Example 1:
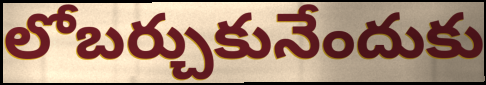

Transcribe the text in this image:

లోబర్చుకునేందుకు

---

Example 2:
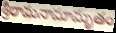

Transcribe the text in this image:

శ్రీరామనామామృతం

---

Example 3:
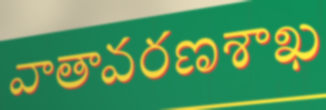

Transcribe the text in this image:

వాతావరణశాఖ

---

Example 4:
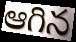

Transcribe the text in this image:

ఆగిన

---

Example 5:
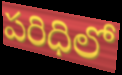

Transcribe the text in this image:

పరిధిలో